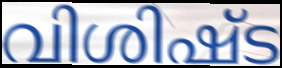
വിശിഷ്ട